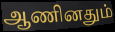
ஆணினதும்